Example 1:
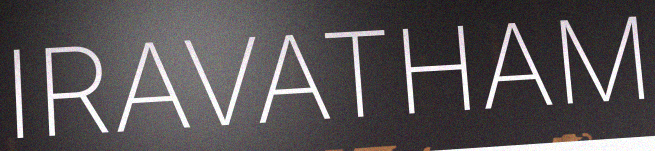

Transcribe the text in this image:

IRAVATHAM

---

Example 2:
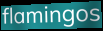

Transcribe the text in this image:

flamingos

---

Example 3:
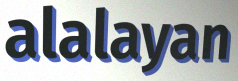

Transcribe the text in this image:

alalayan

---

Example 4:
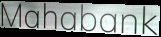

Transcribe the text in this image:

Mahabank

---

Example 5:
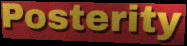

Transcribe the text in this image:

Posterity